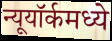
न्यूयॉर्कमध्ये